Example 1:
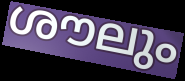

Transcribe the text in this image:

ശൗലും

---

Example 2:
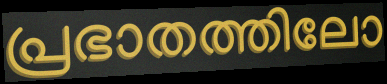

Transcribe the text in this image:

പ്രഭാതത്തിലോ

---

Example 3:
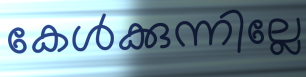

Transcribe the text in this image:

കേൾക്കുന്നില്ലേ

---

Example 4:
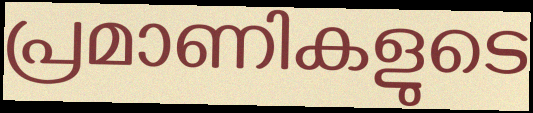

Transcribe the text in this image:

പ്രമാണികളുടെ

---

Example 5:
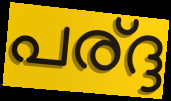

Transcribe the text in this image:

പര്ദ്ദ